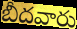
బీదవారు